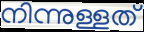
നിന്നുള്ളത്